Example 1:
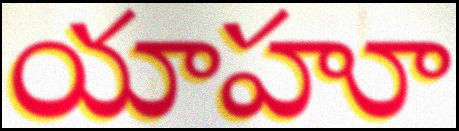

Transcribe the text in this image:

యాహూ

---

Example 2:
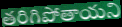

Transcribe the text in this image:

తరిగిపోతాయని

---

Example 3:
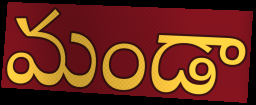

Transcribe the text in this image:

మండా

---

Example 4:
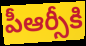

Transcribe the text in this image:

పీఆర్సీకి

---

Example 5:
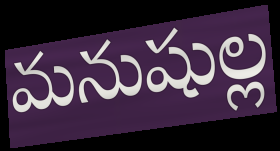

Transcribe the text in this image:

మనుషుల్ల